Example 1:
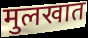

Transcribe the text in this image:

मुलखात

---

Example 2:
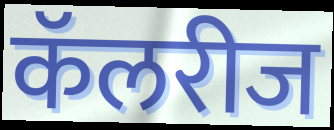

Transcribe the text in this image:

कॅलरीज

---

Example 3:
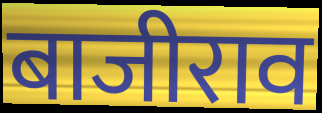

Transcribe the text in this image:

बाजीराव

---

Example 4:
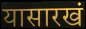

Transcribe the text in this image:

यासारखं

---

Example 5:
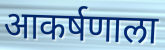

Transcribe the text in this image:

आकर्षणाला